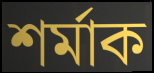
শৰ্মাক